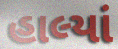
હાલ્યાં